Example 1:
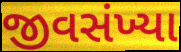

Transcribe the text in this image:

જીવસંખ્યા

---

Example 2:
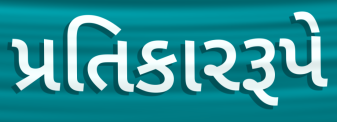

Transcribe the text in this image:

પ્રતિકારરૂપે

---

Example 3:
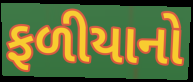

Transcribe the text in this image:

ફળીયાનો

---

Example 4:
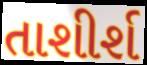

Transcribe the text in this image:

તાશીર્શ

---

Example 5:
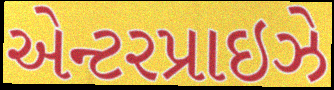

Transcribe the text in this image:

એન્ટરપ્રાઇઝે